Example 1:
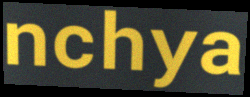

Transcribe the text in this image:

nchya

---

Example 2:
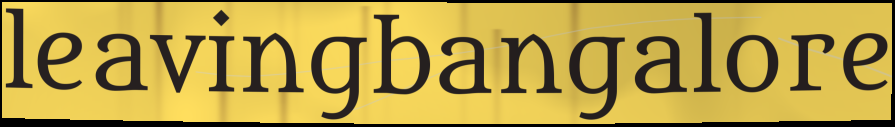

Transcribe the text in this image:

leavingbangalore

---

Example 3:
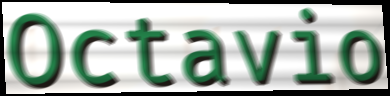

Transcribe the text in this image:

Octavio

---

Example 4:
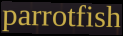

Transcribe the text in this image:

parrotfish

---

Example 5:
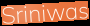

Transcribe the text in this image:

Sriniwas